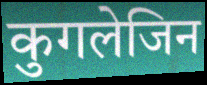
कुगलेजिन